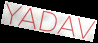
YADAV